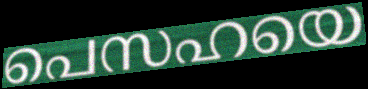
പെസഹയെ